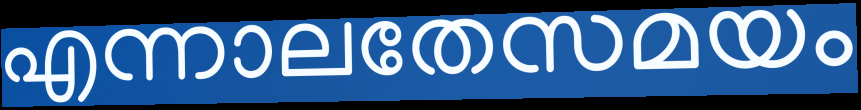
എന്നാലതേസമയം